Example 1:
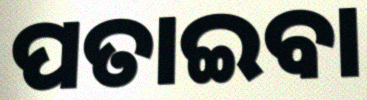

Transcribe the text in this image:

ପତାଇବା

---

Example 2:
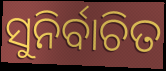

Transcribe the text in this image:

ସୁନିର୍ବାଚିତ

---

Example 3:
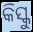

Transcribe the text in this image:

କିସ୍କୁ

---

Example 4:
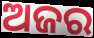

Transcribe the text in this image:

ଅଜର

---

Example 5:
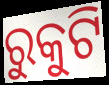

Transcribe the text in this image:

ରୁକୁଟି